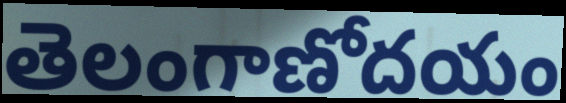
తెలంగాణోదయం